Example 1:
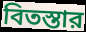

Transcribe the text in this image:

বিতস্তার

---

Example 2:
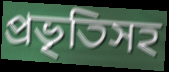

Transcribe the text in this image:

প্রভৃতিসহ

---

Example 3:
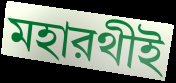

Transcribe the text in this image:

মহারথীই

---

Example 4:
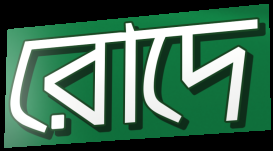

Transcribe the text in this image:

রোদে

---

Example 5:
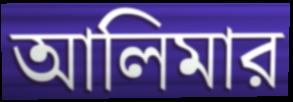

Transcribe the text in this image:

আলিমার